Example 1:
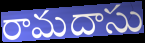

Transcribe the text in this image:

రామదాసు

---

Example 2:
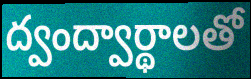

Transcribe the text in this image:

ద్వంద్వార్థాలతో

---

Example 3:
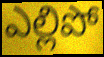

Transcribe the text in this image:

ఎల్లిపో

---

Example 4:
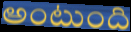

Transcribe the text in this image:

అంటుంది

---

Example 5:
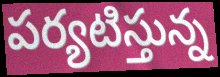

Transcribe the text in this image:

పర్యటిస్తున్న